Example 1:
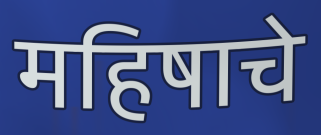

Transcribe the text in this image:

महिषाचे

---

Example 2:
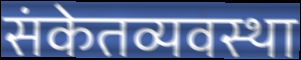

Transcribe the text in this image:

संकेतव्यवस्था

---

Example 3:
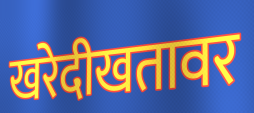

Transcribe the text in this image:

खरेदीखतावर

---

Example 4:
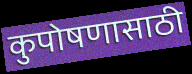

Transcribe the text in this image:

कुपोषणासाठी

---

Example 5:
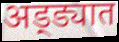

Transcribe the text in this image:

अड्ड्यात